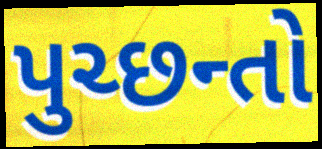
પુચ્છન્તો